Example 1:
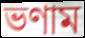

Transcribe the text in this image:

ভণাম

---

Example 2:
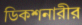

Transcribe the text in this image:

ডিকশনারীর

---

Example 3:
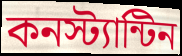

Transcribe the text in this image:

কনস্ট্যান্টিন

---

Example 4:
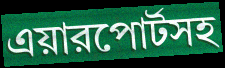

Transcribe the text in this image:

এয়ারপোর্টসহ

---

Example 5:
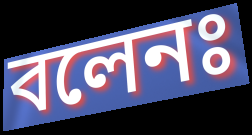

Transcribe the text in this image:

বলেনঃ